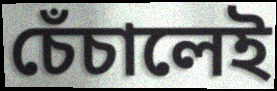
চেঁচালেই